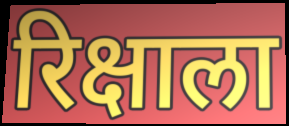
रिक्षाला